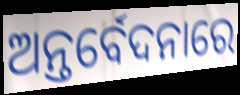
ଅନ୍ତର୍ବେଦନାରେ